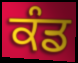
ਕੰਡ